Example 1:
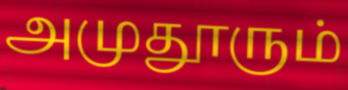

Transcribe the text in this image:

அமுதூரும்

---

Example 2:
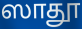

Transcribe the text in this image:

ஸாதூ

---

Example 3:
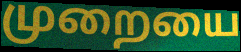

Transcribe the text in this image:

முறையை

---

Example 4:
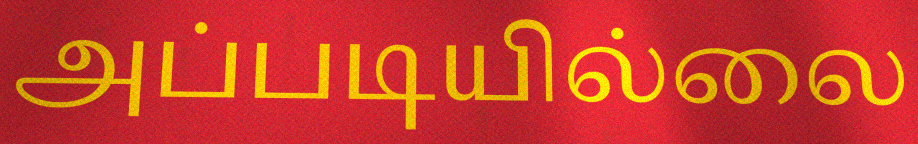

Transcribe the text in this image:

அப்படியில்லை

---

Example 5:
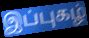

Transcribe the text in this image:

இப்புகழ்